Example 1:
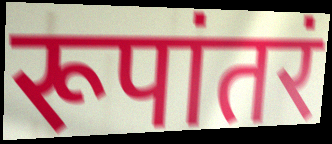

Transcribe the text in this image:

रूपांतरं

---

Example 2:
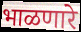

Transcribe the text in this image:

भाळणारे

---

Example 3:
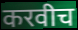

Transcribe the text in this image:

करवीच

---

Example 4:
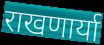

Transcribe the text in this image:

राखणार्या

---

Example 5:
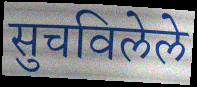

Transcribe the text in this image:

सुचविलेले